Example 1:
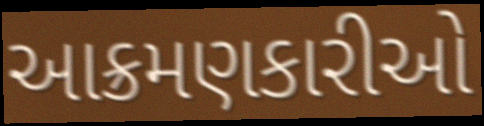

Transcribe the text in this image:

આક્રમણકારીઓ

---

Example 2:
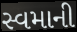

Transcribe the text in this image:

સ્વમાની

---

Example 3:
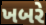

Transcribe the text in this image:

ખબરે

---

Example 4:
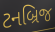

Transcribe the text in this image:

ટનબ્રિજ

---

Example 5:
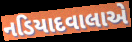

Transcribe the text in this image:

નડિયાદવાલાએ